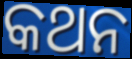
କଥନ